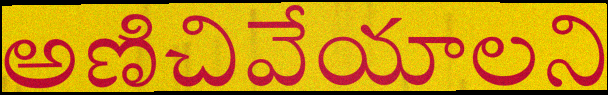
అణిచివేయాలని